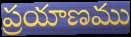
ప్రయాణము